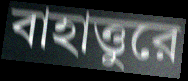
বাহাত্তুরে